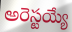
అరెస్టయ్యే